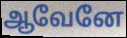
ஆவேனே